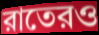
রাতেরও